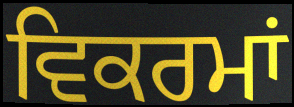
ਵਿਕਰਮਾਂ